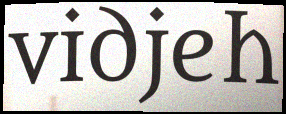
vidjeh